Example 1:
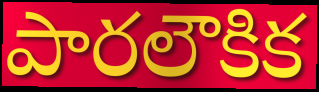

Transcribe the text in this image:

పారలౌకిక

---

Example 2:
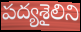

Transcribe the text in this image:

పద్యశైలిని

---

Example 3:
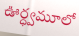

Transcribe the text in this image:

ఊర్ధ్వమూలో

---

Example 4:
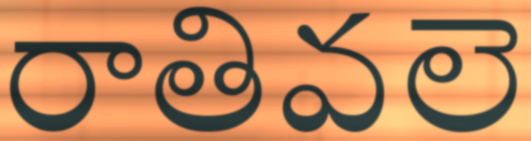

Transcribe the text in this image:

రాతివలె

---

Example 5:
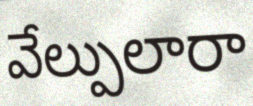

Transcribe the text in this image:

వేల్పులారా